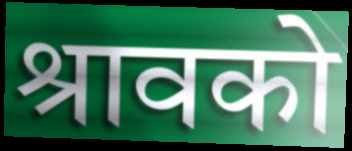
श्रावको